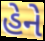
હેને